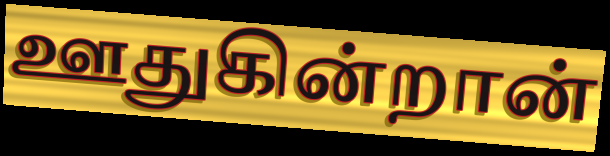
ஊதுகின்றான்